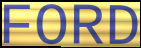
FORD